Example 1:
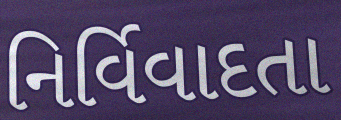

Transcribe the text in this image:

નિર્વિવાદતા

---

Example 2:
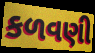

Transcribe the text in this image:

કળવણી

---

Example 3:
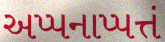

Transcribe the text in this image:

અપ્પનાપ્પત્તં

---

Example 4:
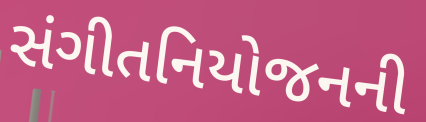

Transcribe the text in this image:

સંગીતનિયોજનની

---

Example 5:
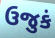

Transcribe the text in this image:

ઉજુકં